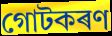
গোটকৰণ